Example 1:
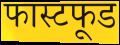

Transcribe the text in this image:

फास्टफूड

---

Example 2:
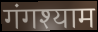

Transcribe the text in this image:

गंगश्याम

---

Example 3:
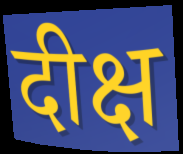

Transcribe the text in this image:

दीक्ष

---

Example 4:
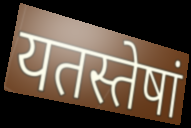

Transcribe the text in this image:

यतस्तेषां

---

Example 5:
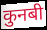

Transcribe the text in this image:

कुनबी